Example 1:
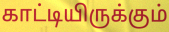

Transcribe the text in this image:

காட்டியிருக்கும்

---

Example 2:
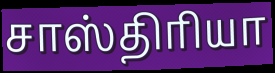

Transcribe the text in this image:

சாஸ்திரியா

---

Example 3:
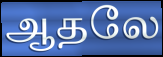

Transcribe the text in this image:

ஆதலே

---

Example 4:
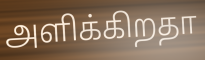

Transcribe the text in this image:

அளிக்கிறதா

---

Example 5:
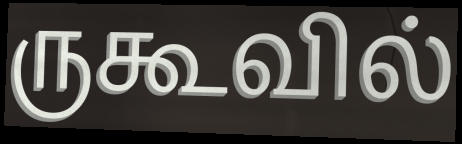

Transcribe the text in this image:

ருகூவில்